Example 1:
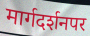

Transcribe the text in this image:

मार्गदर्शनपर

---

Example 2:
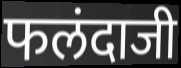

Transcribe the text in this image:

फलंदाजी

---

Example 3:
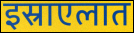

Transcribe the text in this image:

इस्राएलात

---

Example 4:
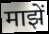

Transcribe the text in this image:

माझें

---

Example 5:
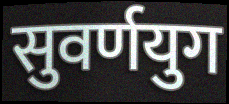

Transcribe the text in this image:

सुवर्णयुग